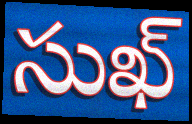
సుఖ్